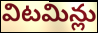
విటమిన్లు